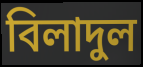
বিলাদুল